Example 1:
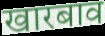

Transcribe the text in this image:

खारबाव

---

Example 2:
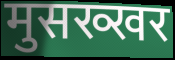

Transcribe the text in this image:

मुसख्खर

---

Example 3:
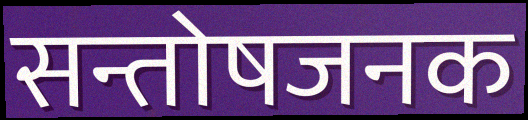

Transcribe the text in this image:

सन्तोषजनक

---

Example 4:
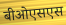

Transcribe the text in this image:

बीओएसएस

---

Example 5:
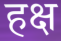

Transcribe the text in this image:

हक्ष